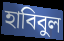
হাবিবুল